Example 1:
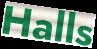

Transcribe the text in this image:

Halls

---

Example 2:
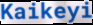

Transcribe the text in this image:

Kaikeyi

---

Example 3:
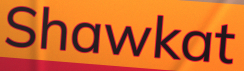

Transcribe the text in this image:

Shawkat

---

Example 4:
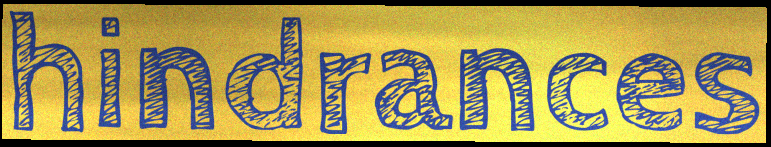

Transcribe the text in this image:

hindrances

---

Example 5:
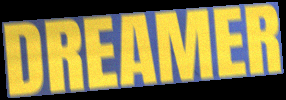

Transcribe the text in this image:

DREAMER